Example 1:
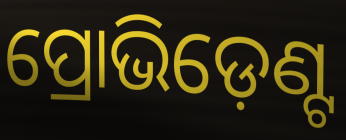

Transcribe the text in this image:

ପ୍ରୋଭିଡ଼େଣ୍ଟ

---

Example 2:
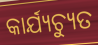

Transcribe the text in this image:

କାର୍ଯ୍ୟଚ୍ୟୁତ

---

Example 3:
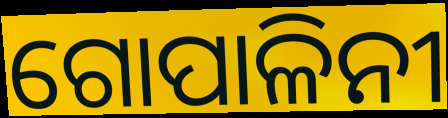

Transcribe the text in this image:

ଗୋପାଳିନୀ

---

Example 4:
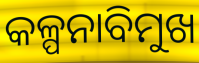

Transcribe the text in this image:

କଳ୍ପନାବିମୁଖ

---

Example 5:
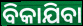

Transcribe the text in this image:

ବିକାଯିବା